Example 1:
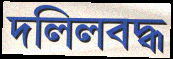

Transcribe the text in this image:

দলিলবদ্ধ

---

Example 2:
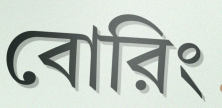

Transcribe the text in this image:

বোরিং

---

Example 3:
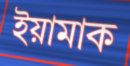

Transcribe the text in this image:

ইয়ামাক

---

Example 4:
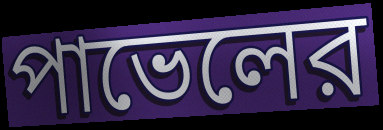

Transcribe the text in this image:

পাভেলের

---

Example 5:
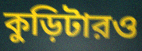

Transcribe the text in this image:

কুড়িটারও